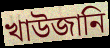
খাউজানি